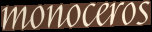
monoceros